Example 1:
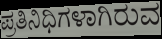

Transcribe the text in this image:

ಪ್ರತಿನಿಧಿಗಳಾಗಿರುವ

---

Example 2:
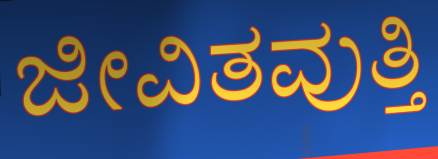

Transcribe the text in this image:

ಜೀವಿತವುತ್ತಿ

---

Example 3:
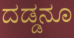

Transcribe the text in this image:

ದಡ್ಡನೂ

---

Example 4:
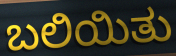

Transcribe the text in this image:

ಬಲಿಯಿತು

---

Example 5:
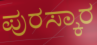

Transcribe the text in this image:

ಪುರಸ್ಕಾರ